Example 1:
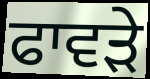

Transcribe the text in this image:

ਫਾਵੜੇ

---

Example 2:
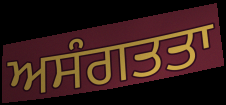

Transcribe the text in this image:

ਅਸੰਗਤਤਾ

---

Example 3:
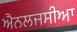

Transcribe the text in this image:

ਐਨਲਜਸੀਆ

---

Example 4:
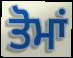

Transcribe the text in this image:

ਤੋਮਾਂ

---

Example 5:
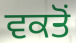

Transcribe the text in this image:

ਵਕਤੋਂ